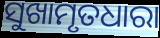
ସୁଖାମୃତଧାରା